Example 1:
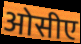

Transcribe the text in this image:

ओसीए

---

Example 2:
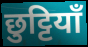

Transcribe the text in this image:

छुट्टियाँ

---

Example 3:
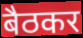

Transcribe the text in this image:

बैठकर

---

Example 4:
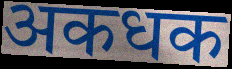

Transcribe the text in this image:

अकधक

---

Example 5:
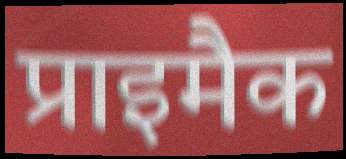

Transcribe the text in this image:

प्राइमैक